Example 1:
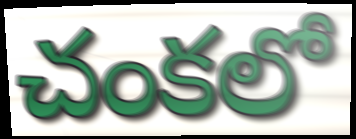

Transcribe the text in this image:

చంకలో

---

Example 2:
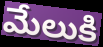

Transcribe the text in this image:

మేలుకి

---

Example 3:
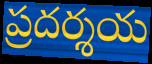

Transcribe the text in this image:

ప్రదర్శయ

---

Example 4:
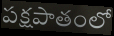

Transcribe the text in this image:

పక్షపాతంలో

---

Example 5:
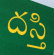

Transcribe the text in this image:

దస్తి